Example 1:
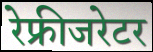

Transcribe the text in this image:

रेफ्रीजरेटर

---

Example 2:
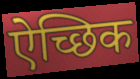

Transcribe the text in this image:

ऐच्छिक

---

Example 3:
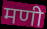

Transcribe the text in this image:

मणी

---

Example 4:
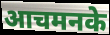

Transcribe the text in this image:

आचमनके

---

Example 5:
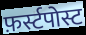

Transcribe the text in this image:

फ़र्स्टपोस्ट